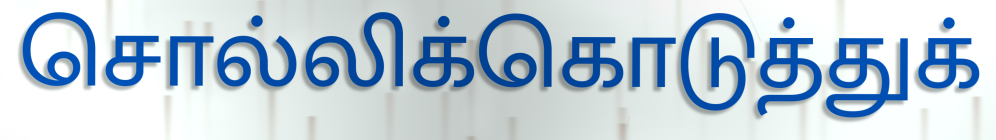
சொல்லிக்கொடுத்துக்